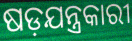
ଷଡ଼ଯନ୍ତ୍ରକାରୀ